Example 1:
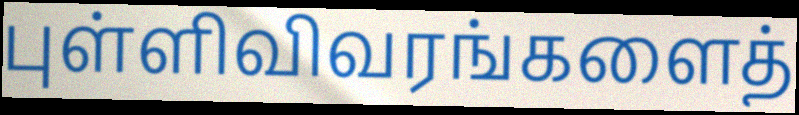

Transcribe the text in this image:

புள்ளிவிவரங்களைத்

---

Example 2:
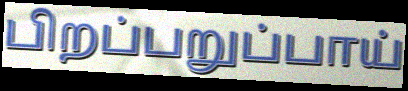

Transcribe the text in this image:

பிறப்பறுப்பாய்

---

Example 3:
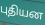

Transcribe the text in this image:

புதியன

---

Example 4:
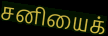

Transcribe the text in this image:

சனியைக்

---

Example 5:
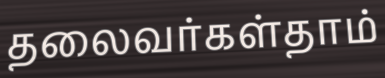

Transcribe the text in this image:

தலைவர்கள்தாம்